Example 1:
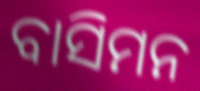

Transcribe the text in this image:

ବାସିମନ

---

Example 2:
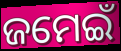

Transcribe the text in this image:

ଜମେଇଁ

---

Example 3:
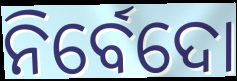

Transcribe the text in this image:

ନିର୍ବେଦୋ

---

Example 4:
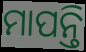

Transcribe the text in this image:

ମାପନ୍ତି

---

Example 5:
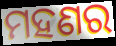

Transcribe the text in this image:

ମହଣର